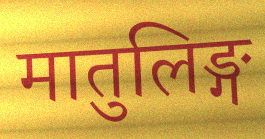
मातुलिङ्ग